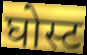
घोस्ट